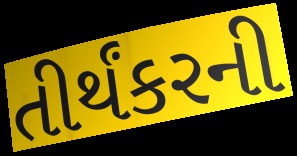
તીર્થંકરની